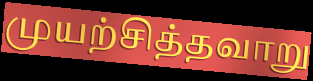
முயற்சித்தவாறு